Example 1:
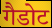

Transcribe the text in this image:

गैडोट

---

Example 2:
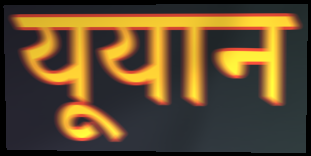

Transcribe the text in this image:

यूयान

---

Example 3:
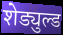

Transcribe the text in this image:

शेड्युल्ड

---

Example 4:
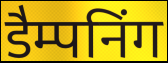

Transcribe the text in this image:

डैम्पनिंग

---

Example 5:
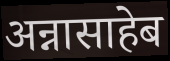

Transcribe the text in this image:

अन्नासाहेब